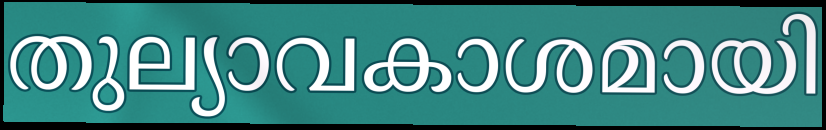
തുല്യാവകാശമായി